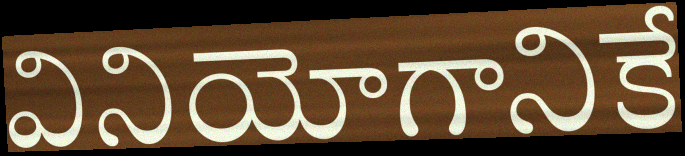
వినియోగానికే